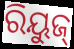
ରିୟୁଜ୍